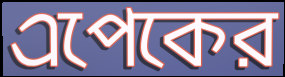
এপেকের